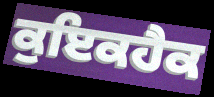
ਕੁਇਕਹੈਕ